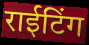
राईटिंग